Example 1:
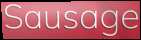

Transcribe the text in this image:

Sausage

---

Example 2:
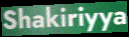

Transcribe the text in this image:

Shakiriyya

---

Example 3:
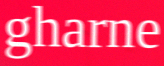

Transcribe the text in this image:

gharne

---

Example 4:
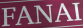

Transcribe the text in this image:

FANAI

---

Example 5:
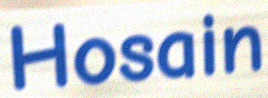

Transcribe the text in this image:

Hosain